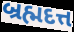
બ્રહ્મદત્ત